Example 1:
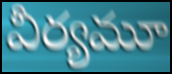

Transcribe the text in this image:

వీర్యమూ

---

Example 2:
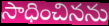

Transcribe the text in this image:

సాధించినను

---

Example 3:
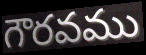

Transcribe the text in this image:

గౌరవము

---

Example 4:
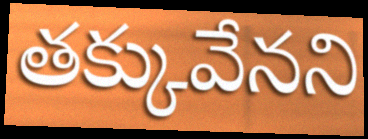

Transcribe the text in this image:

తక్కువేనని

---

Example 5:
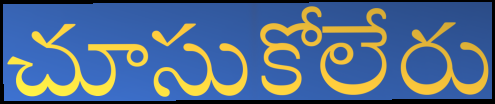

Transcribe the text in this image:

చూసుకోలేరు